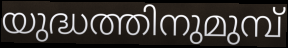
യുദ്ധത്തിനുമുമ്പ്